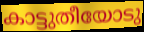
കാട്ടുതീയോടു